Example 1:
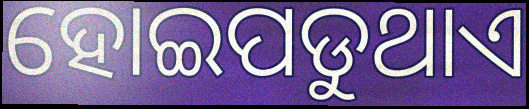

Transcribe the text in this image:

ହୋଇପଡୁଥାଏ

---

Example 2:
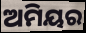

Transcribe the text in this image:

ଅମିୟର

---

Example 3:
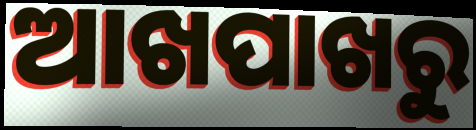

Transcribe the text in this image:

ଆଖପାଖରୁ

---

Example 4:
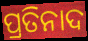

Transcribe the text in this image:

ପ୍ରତିନାଦ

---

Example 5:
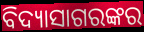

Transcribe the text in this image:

ବିଦ୍ୟାସାଗରଙ୍କର